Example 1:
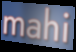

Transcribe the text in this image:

mahi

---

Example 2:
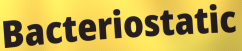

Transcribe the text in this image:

Bacteriostatic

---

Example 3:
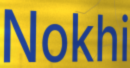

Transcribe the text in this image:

Nokhi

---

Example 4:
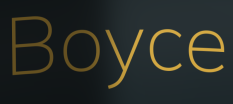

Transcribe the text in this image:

Boyce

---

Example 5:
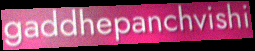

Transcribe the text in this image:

gaddhepanchvishi